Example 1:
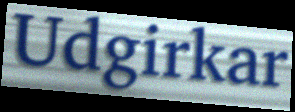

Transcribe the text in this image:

Udgirkar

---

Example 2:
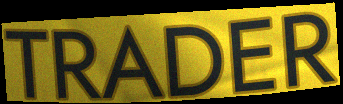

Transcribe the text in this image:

TRADER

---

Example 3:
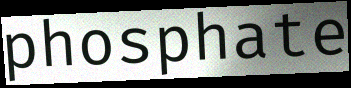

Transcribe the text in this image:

phosphate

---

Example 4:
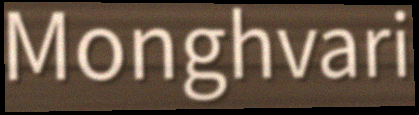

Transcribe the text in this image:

Monghvari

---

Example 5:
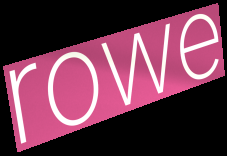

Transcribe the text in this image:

rowe